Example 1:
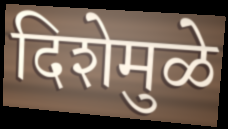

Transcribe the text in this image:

दिशेमुळे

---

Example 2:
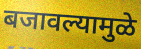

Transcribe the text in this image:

बजावल्यामुळे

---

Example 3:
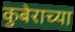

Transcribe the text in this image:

कुबेराच्या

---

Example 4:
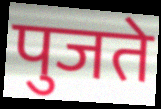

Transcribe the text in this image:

पुजते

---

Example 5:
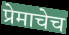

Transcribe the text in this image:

प्रेमाचेच